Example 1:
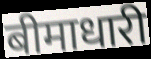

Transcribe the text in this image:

बीमाधारी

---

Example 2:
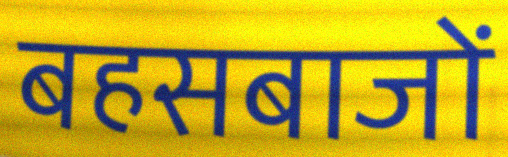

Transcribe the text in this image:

बहसबाजों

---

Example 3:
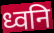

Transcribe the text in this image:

ध्‍वनि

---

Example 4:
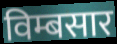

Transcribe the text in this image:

विम्बसार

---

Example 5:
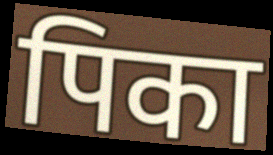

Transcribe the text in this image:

पिका